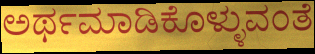
ಅರ್ಥಮಾಡಿಕೊಳ್ಳುವಂತೆ